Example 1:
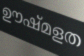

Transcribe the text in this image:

ഊഷ്മളത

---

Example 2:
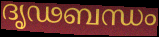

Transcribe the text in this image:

ദൃഢബന്ധം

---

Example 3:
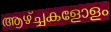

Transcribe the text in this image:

ആഴ്ച്ചകളോളം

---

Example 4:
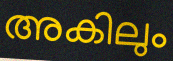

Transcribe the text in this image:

അകിലും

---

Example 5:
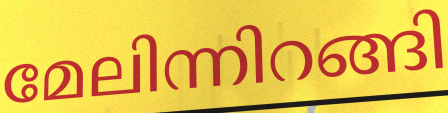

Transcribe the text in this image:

മേലിന്നിറങ്ങി